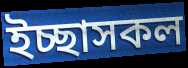
ইচ্ছাসকল